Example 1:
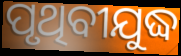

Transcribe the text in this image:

ପୃଥିବୀଯୁଦ୍ଧ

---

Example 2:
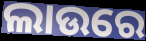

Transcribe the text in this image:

ଲାଉରେ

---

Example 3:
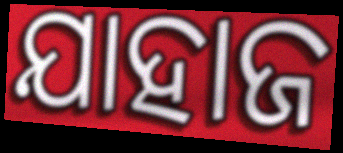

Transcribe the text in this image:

ଯାହାଜ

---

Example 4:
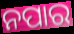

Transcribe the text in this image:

ନପାର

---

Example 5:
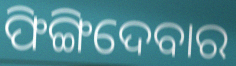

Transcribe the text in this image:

ଫିଙ୍ଗିଦେବାର